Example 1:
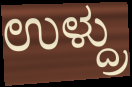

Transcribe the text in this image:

ಉಳ್ದ್ರು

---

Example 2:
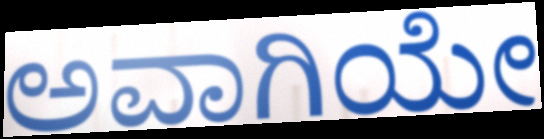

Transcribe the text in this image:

ಅವಾಗಿಯೇ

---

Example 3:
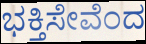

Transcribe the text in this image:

ಭಕ್ತಿಸೇವೆಂದ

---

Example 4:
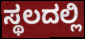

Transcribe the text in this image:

ಸ್ಥಲದಲ್ಲಿ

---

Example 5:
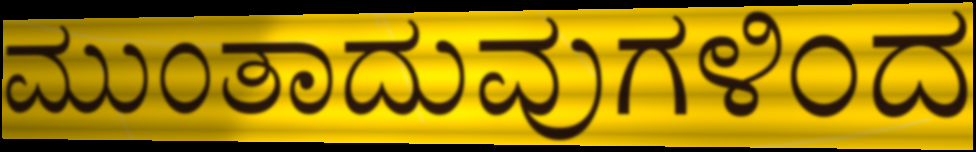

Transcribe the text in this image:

ಮುಂತಾದುವುಗಳಿಂದ